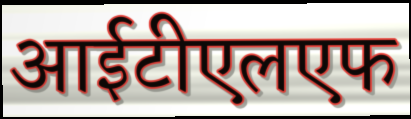
आईटीएलएफ